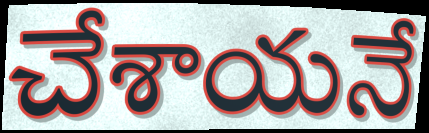
చేశాయనే